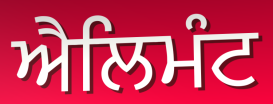
ਐਲਿਮੰਟ